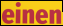
einen